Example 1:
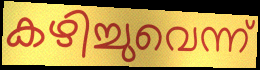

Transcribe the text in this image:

കഴിച്ചുവെന്ന്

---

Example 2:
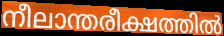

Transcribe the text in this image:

നീലാന്തരീക്ഷത്തിൽ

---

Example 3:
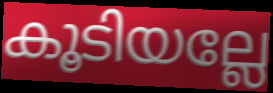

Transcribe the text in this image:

കൂടിയല്ലേ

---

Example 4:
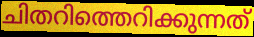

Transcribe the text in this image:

ചിതറിത്തെറിക്കുന്നത്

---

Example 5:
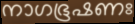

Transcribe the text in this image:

നാഗഭൂഷണഃ